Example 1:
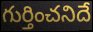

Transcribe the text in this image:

గుర్తించనిదే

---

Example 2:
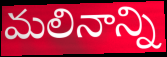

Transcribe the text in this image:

మలినాన్ని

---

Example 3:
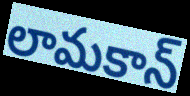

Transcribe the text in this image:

లామకాన్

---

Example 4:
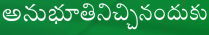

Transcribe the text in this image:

అనుభూతినిచ్చినందుకు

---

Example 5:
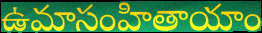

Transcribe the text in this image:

ఉమాసంహితాయాం